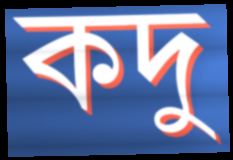
কদু